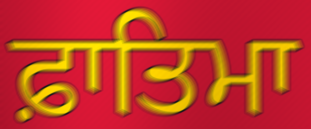
ਫ਼ਾਤਿਮਾ